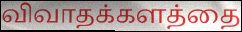
விவாதக்களத்தை